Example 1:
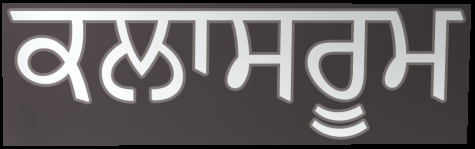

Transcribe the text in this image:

ਕਲਾਸਰੂਮ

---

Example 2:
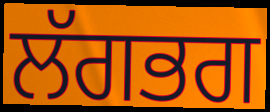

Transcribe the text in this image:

ਲੱਗਭਗ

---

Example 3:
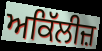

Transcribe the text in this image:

ਅਕਿੱਲੀਜ਼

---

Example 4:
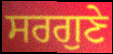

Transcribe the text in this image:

ਸਰਗੁਣੇ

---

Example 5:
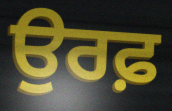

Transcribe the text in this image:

ਉਰਫ਼